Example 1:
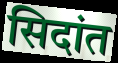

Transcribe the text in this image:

सिदांत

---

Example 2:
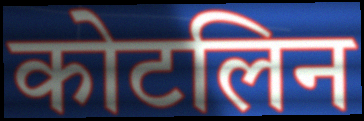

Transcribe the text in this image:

कोटलिन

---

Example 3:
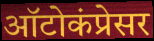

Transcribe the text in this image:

ऑटोकंप्रेसर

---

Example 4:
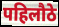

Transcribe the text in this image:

पहिलौठे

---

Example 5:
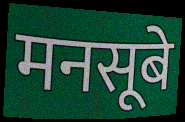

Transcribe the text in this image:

मनसूबे